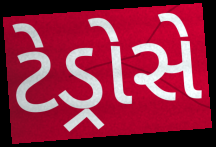
ટેડ્રોસે